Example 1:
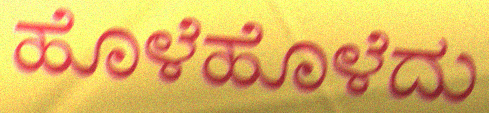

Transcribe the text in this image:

ಹೊಳೆಹೊಳೆದು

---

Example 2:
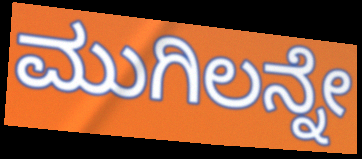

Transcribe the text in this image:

ಮುಗಿಲನ್ನೇ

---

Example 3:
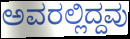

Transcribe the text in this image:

ಅವರಲ್ಲಿದ್ದವು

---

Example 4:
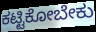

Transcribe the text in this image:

ಕಟ್ಟಿಕೋಬೇಕು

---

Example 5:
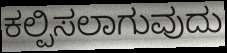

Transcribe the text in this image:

ಕಲ್ಪಿಸಲಾಗುವುದು